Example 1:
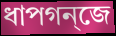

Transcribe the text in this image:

ধাপগন্জে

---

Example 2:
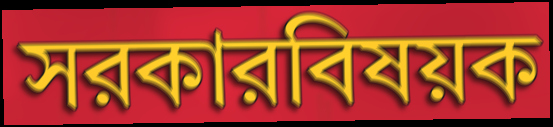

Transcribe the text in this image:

সরকারবিষয়ক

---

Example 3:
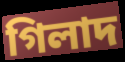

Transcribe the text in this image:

গিলাদ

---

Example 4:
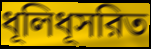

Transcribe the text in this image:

ধূলিধূসরিত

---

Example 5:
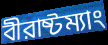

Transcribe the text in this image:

বীরাষ্টম্যাং